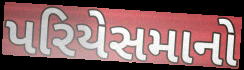
પરિયેસમાનો